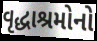
વૃદ્ધાશ્રમોનો